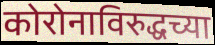
कोरोनाविरुद्धच्या